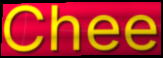
Chee